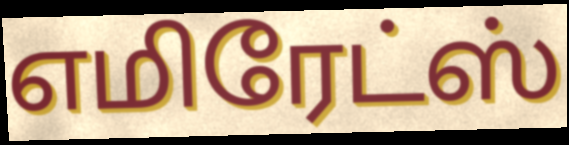
எமிரேட்ஸ்